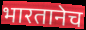
भारतानेच